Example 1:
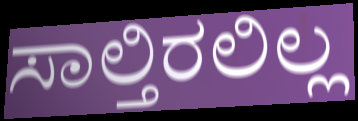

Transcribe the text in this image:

ಸಾಲ್ತಿರಲಿಲ್ಲ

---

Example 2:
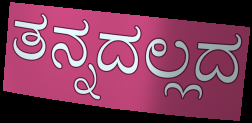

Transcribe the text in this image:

ತನ್ನದಲ್ಲದ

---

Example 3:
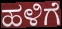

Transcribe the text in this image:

ಹಳಿಗೆ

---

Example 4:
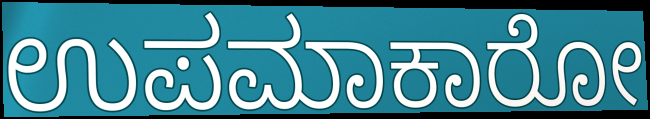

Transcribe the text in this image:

ಉಪಮಾಕಾರೋ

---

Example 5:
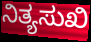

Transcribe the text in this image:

ನಿತ್ಯಸುಖಿ